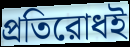
প্রতিরোধই